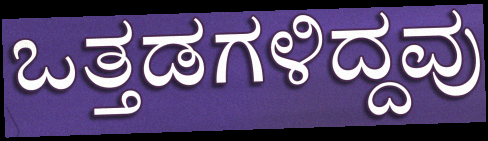
ಒತ್ತಡಗಳಿದ್ದವು